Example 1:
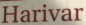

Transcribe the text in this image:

Harivar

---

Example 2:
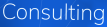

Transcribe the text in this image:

Consulting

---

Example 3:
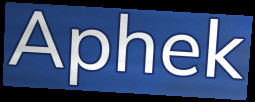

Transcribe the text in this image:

Aphek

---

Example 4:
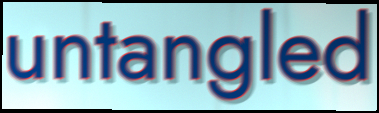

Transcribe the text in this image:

untangled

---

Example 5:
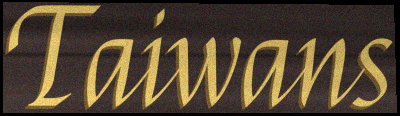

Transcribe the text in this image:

Taiwans